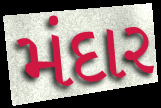
મંદાર